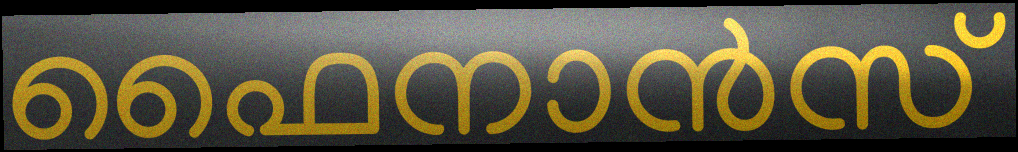
ഫൈനാൻസ്